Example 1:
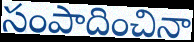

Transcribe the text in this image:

సంపాదించినా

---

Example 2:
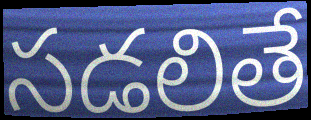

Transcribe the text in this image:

సడలితే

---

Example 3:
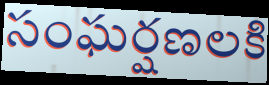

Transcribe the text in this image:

సంఘర్షణలకి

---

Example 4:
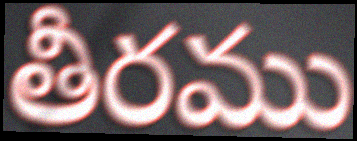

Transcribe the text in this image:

తీరము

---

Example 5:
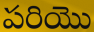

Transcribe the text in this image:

పరియొ